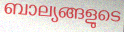
ബാല്യങ്ങളുടെ